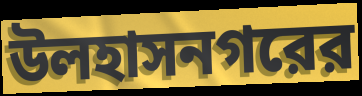
উলহাসনগরের